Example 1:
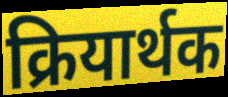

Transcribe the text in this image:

क्रियार्थक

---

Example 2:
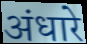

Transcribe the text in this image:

अंधारे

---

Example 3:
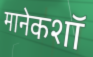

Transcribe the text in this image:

मानेकशॉ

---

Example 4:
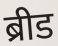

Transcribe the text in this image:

ब्रीड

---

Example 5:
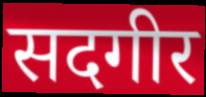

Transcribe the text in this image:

सदगीर